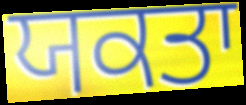
ਯਕਤਾ